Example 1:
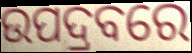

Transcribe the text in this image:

ଉପଦ୍ରବରେ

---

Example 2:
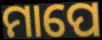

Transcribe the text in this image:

ମାପେ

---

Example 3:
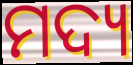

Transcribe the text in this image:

ମଦ୍ୟ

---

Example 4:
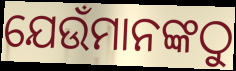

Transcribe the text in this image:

ଯେଉଁମାନଙ୍କଠୁ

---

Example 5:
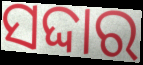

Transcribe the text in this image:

ସଦ୍ଦାର